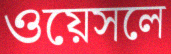
ওয়েসলে